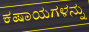
ಕಷಾಯಗಳನ್ನು